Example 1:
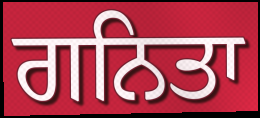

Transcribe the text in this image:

ਗਨਿਤਾ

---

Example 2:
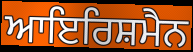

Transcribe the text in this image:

ਆਇਰਿਸ਼ਮੈਨ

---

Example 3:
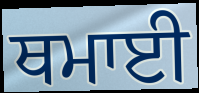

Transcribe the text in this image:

ਥਮਾਈ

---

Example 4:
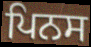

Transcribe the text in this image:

ਪਿਨਸ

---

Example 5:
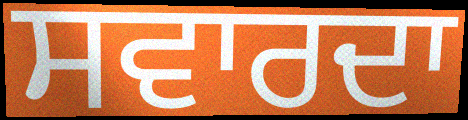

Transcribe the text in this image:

ਸਵਾਰਦਾ